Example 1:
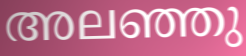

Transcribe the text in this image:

അലഞ്ഞു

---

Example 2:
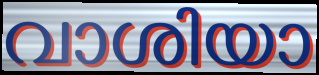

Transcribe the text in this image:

വാശിയാ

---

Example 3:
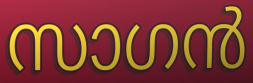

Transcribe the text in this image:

സാഗൻ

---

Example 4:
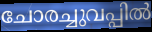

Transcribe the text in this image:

ചോരച്ചുവപ്പിൽ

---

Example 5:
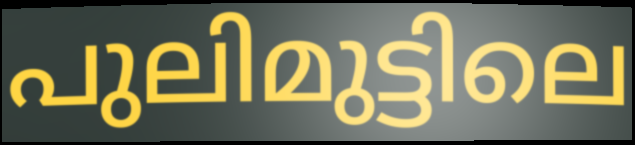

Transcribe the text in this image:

പുലിമുട്ടിലെ